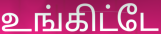
உங்கிட்டே